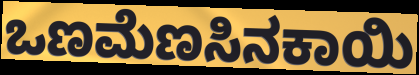
ಒಣಮೆಣಸಿನಕಾಯಿ